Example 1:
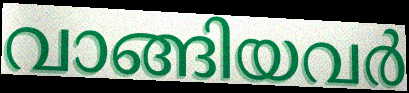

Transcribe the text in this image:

വാങ്ങിയവർ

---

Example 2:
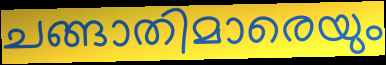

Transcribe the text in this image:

ചങ്ങാതിമാരെയും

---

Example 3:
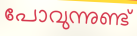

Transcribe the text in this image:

പോവുന്നുണ്ട്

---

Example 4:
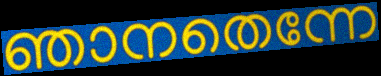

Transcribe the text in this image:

ഞാനതെന്നേ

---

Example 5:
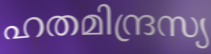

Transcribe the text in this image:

ഹതമിന്ദ്രസ്യ